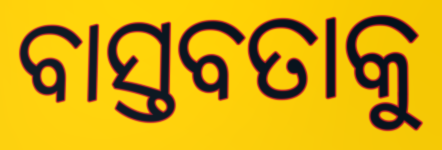
ବାସ୍ତବତାକୁ